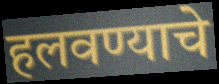
हलवण्याचे